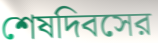
শেষদিবসের